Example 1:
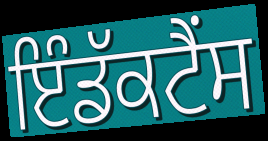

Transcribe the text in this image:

ਇੰਡੱਕਟੈਂਸ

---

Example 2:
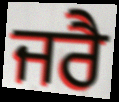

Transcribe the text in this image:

ਜਰੈ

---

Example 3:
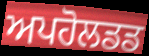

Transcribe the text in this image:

ਅਪਹੋਲਡਡ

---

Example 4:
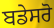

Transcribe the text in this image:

ਬਡੇਸਰੋ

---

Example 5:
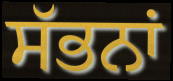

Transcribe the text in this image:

ਸੱਭਨਾਂ